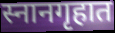
स्नानगृहात